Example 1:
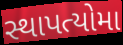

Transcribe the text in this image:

સ્થાપત્યોમા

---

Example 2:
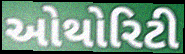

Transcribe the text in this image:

ઓથોરિટી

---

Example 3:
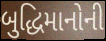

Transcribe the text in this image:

બુદ્ધિમાનોની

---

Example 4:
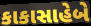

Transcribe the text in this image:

કાકાસાહેબે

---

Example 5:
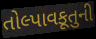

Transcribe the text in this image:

તોલ્પાવકૂતુની